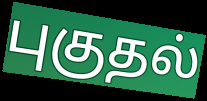
புகுதல்